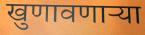
खुणावणाऱ्या